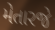
મેતારજે